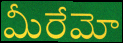
మీరేమో